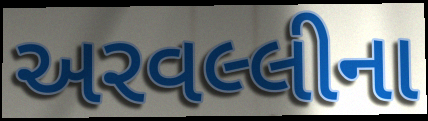
અરવલ્લીના